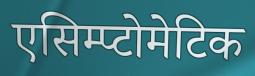
एसिम्प्टोमेटिक